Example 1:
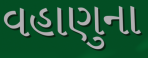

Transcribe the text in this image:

વહાણુના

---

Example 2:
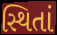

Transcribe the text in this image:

સ્થિતાં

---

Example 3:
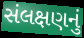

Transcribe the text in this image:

સંલક્ષણનું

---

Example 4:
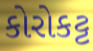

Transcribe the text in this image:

કોરોકટ્ટ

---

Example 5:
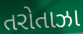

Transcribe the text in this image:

તરોતાઝા